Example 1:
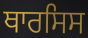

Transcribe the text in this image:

ਥਾਰਸਿਸ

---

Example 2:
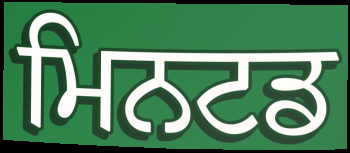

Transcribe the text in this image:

ਮਿਨਟਡ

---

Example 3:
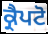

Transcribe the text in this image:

ਕ੍ਰੈਪਟੋ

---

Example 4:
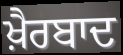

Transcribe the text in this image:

ਖ਼ੈਰਬਾਦ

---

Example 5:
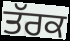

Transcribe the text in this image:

ਤੱਰਕ